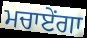
ਮਚਾਏਂਗਾ